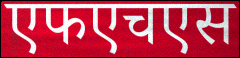
एफएचएस